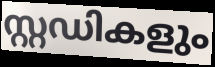
സ്റ്റഡികളും